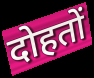
दोहतों